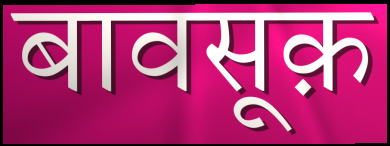
बावसूक़